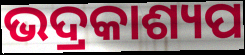
ଭଦ୍ରକାଶ୍ୟପ